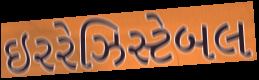
ઇરરેઝિસ્ટેબલ